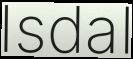
Isdal